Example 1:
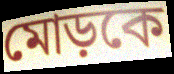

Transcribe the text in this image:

মোড়কে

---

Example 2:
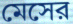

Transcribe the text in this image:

মেসের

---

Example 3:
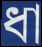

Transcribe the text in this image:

ধা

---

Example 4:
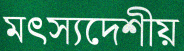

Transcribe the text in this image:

মৎস্যদেশীয়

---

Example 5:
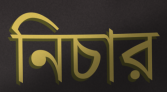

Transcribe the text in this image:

নিচার